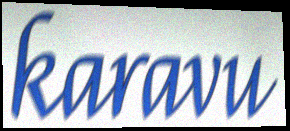
karavu